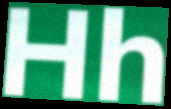
Hh